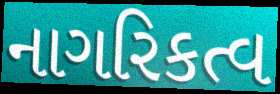
નાગરિકત્વ